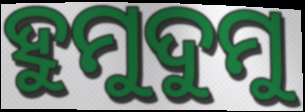
ହୁମୁଦୁମୁ